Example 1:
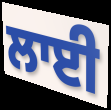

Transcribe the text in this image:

ਲਾਈ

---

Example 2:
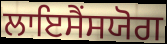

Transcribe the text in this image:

ਲਾਇਸੈਂਸਯੋਗ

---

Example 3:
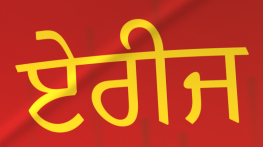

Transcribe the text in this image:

ਏਰੀਜ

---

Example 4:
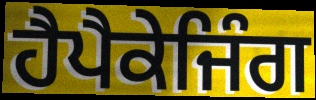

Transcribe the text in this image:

ਹੈਪੈਕੇਜਿੰਗ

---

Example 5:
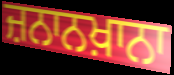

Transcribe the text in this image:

ਜ਼ਨਾਨਖ਼ਾਨਾ